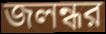
জলন্ধর